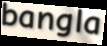
bangla